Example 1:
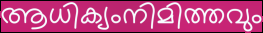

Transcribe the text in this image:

ആധിക്യംനിമിത്തവും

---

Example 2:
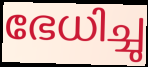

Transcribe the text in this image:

ഭേധിച്ചു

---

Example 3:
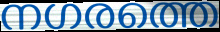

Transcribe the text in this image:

നഗരത്തെ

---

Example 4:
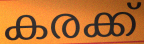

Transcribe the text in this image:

കരക്ക്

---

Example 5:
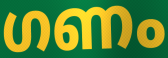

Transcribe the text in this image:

ഗണം